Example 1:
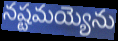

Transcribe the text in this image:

నష్టమయ్యెను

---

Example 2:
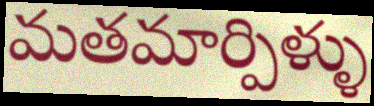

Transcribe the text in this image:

మతమార్పిళ్ళు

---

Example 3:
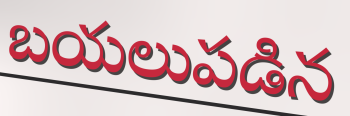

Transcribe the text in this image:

బయలుపడిన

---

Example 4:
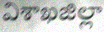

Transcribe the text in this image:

విశాఖజిల్లా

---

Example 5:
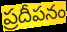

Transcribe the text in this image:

ప్రదీపనం